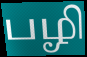
பழி